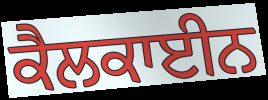
ਕੈਲਕਾਈਨ